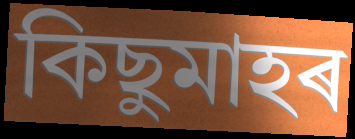
কিছুমাহৰ